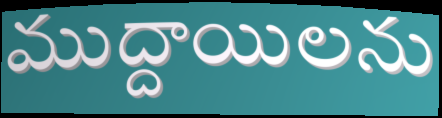
ముద్దాయిలను